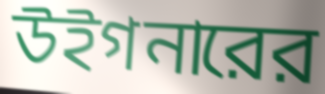
উইগনারের